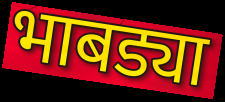
भाबड्या